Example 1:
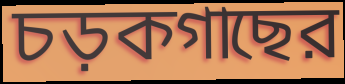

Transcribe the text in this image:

চড়কগাছের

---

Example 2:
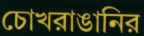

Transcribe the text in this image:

চোখরাঙানির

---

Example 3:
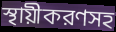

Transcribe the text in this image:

স্থায়ীকরণসহ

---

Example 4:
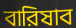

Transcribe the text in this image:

বারিষাব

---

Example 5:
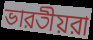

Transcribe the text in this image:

ভারতীয়রা